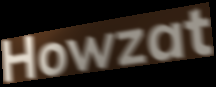
Howzat